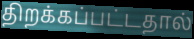
திறக்கப்பட்டதால்